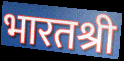
भारतश्री